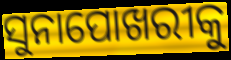
ସୁନାପୋଖରୀକୁ